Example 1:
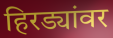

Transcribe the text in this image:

हिरड्यांवर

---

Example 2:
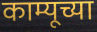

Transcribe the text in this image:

काम्यूच्या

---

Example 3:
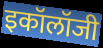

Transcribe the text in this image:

इकॉलॉजी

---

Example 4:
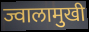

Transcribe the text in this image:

ज्वालामुखी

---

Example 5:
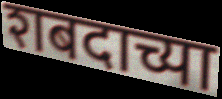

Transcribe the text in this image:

शबदाच्या